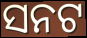
ସନଟ